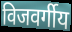
विजवर्गीय